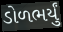
ડોળભર્યું